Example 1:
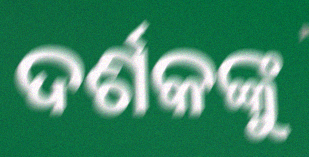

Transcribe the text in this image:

ଦର୍ଶକଙ୍କୁ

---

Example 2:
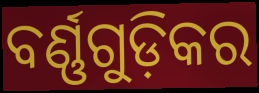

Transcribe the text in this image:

ବର୍ଣ୍ଣଗୁଡ଼ିକର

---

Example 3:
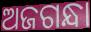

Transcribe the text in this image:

ଅଜଗନ୍ଧା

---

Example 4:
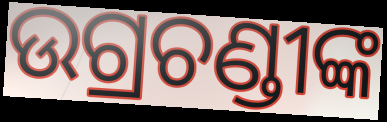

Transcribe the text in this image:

ଉଗ୍ରଚଣ୍ଡୀଙ୍କ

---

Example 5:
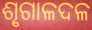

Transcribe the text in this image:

ଶୃଗାଳଦଳ